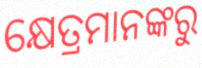
କ୍ଷେତ୍ରମାନଙ୍କରୁ